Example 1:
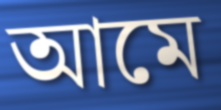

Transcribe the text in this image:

আমে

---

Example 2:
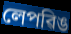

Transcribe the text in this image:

লেপৱিঙ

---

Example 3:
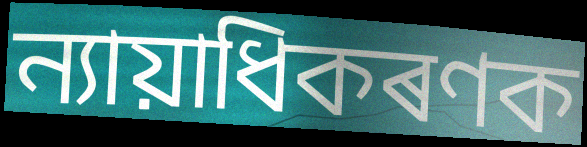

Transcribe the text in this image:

ন্যায়াধিকৰণক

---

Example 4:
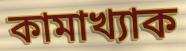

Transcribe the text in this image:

কামাখ্যাক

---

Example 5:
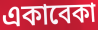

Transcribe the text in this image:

একাবেকা